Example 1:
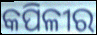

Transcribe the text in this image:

କପିଳୀର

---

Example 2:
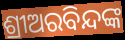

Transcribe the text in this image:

ଶ୍ରୀଅରବିନ୍ଦଙ୍କ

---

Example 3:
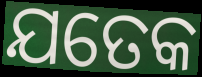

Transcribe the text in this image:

ଯତେକ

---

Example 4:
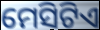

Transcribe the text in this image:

ମେସିଟିଏ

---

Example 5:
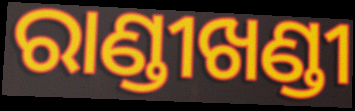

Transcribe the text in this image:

ରାଣ୍ଡୀଖଣ୍ଡୀ